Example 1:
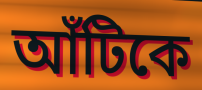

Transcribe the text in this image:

আঁটিকে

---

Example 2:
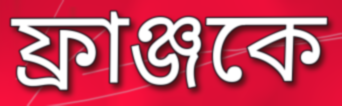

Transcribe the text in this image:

ফ্রাঞ্জকে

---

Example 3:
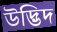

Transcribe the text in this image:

উদ্ভিদ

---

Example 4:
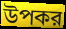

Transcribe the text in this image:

উপকর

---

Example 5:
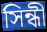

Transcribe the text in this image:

সিন্ধী